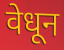
वेधून